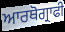
ਆਰਥੋਗ੍ਰਾਫੀ